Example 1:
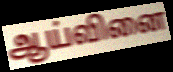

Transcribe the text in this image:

ஆய்வினை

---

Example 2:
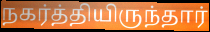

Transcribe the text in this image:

நகர்த்தியிருந்தார்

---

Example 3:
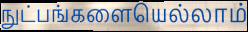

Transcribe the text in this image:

நுட்பங்களையெல்லாம்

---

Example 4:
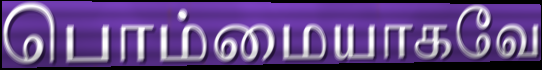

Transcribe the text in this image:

பொம்மையாகவே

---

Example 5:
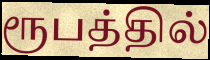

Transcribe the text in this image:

ரூபத்தில்